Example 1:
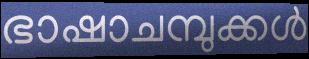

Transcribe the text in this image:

ഭാഷാചമ്പുക്കൾ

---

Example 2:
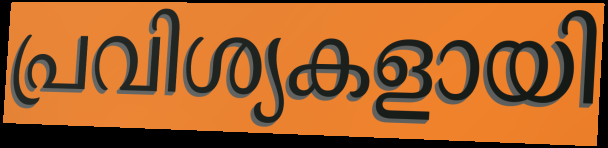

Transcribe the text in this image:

പ്രവിശ്യകളായി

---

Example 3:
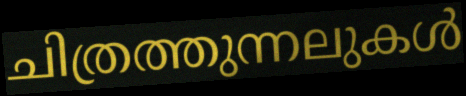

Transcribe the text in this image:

ചിത്രത്തുന്നലുകൾ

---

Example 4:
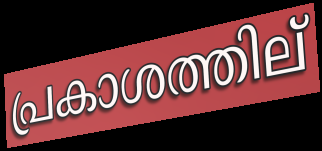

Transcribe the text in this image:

പ്രകാശത്തില്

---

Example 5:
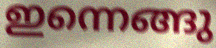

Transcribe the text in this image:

ഇന്നെങ്ങു